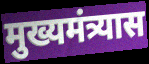
मुख्यमंत्र्यास